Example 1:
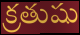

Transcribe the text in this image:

క్రతుషు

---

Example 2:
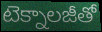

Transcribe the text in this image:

టెక్నాలజీతో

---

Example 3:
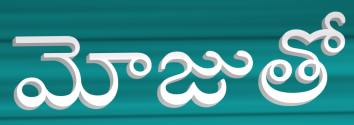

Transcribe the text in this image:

మోజుతో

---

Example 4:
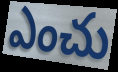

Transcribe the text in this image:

ఎంచు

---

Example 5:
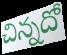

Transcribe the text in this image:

చిన్నదో